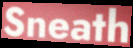
Sneath